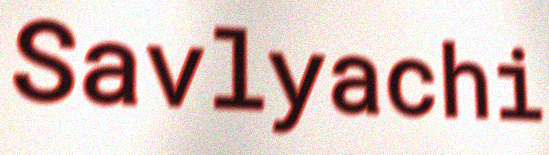
Savlyachi